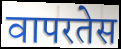
वापरतेस